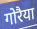
गोरैया